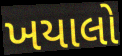
ખયાલો